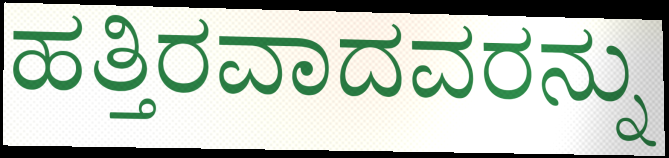
ಹತ್ತಿರವಾದವರನ್ನು